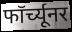
फॉर्च्यूनर